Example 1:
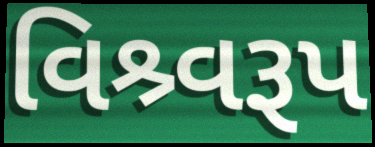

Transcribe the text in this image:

વિશ્ર્વરૂપ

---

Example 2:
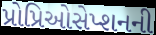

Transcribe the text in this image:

પ્રોપ્રિઓસેપ્શનની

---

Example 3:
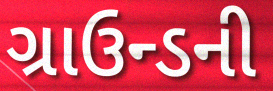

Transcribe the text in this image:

ગ્રાઉન્ડની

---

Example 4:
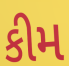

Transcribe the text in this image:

કીમ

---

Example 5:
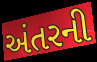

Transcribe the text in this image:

અંતરની